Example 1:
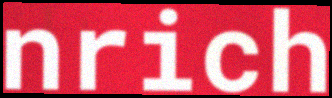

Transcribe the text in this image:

nrich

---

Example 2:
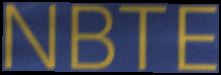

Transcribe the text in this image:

NBTE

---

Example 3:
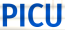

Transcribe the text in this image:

PICU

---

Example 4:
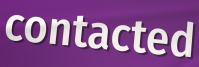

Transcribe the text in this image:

contacted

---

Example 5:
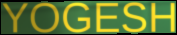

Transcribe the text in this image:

YOGESH